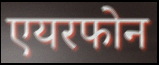
एयरफोन